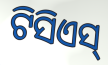
ଟିସିଏସ୍